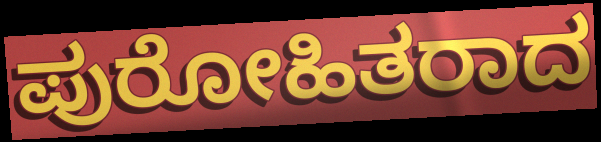
ಪುರೋಹಿತರಾದ